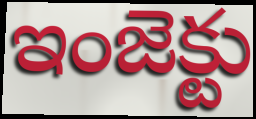
ఇంజెక్టు